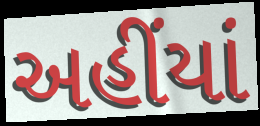
અહીંયાં